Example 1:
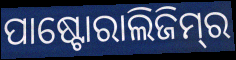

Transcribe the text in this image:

ପାଷ୍ଟୋରାଲିଜିମ୍‌ର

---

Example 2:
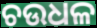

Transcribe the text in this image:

ଚଉଧଳ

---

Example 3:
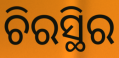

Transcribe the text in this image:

ଚିରସ୍ଥିର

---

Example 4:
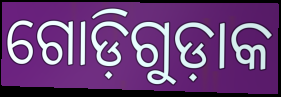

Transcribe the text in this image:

ଗୋଡ଼ିଗୁଡ଼ାକ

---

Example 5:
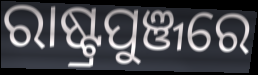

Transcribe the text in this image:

ରାଷ୍ଟ୍ରପୁଞ୍ଜରେ